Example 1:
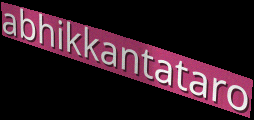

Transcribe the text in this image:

abhikkantataro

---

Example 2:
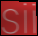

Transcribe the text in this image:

sii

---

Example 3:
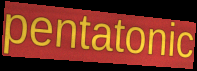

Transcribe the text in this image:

pentatonic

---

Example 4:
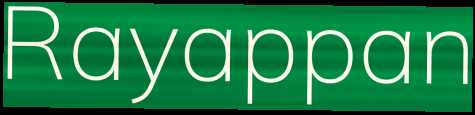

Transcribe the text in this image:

Rayappan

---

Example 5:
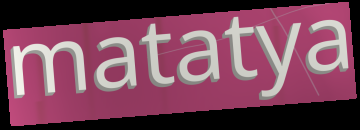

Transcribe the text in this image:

matatya